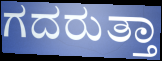
ಗದರುತ್ತಾ